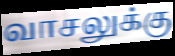
வாசலுக்கு